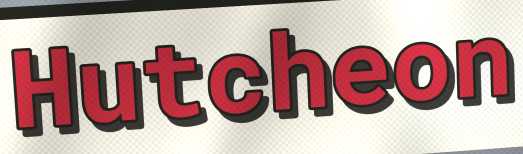
Hutcheon